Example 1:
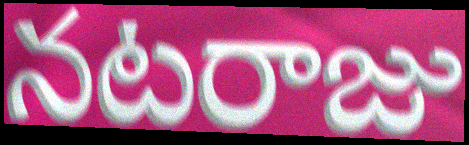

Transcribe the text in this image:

నటరాజు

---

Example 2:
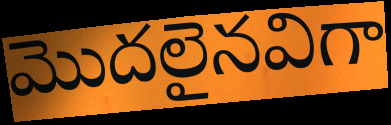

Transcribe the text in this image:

మొదలైనవిగా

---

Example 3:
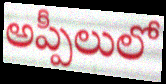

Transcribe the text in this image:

అప్పీలులో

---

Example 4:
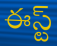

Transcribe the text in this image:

ఈస్ట్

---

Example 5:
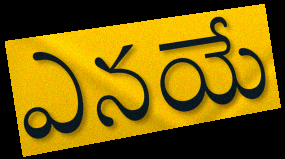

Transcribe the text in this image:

ఎనయే